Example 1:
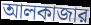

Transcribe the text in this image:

আলকাজার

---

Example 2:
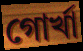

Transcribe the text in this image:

গোর্খা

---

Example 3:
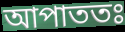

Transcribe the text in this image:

আপাততঃ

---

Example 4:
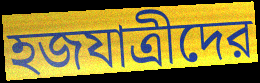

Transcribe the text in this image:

হজযাত্রীদের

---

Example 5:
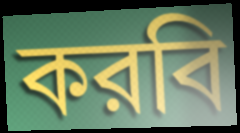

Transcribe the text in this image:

করবি